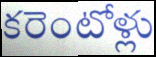
కరెంటోళ్లు